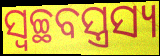
ସ୍ଵଚ୍ଛବସ୍ତ୍ରସ୍ୟ